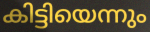
കിട്ടിയെന്നും